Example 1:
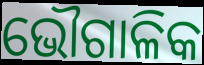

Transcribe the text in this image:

ଭୌଗାଳିକ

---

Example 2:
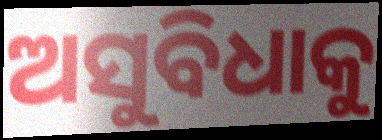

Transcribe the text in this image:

ଅସୁବିଧାକୁ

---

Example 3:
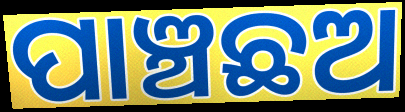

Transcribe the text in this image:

ପାଞ୍ଚଛଅ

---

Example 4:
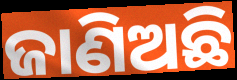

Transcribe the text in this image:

ଜାଣିଅଛି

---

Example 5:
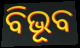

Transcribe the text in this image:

ବିଭୂବ